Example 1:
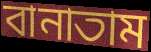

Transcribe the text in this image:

বানাতাম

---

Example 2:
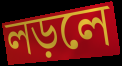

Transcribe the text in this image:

লড়লে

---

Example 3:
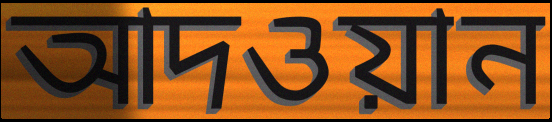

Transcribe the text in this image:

আদওয়ান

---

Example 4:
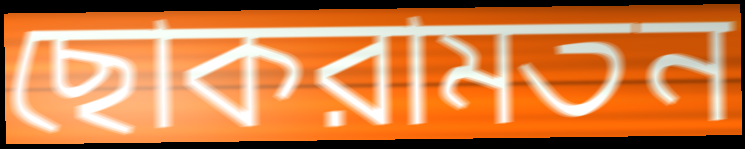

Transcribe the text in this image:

ছোকরামতন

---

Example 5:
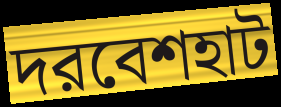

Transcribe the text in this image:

দরবেশহাট